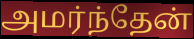
அமர்ந்தேன்